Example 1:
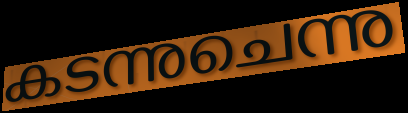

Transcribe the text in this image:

കടന്നുചെന്നു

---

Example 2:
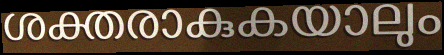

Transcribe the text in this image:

ശക്തരാകുകയാലും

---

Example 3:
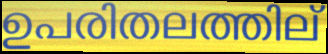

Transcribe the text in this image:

ഉപരിതലത്തില്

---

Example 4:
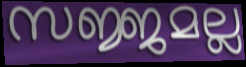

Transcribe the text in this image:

സജ്ജമല്ല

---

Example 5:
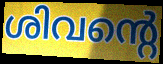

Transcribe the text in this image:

ശിവന്റെ